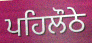
ਪਹਿਲੌਠੇ